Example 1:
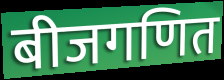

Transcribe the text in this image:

बीजगणित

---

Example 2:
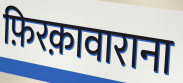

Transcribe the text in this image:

फ़िरक़ावाराना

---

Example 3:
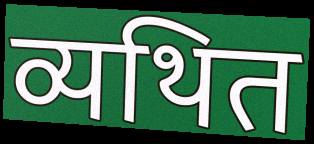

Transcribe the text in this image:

व्यथित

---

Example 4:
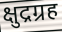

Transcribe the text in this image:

क्षुद्रग्रह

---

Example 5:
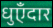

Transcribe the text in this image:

धुएँदार